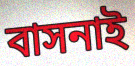
বাসনাই